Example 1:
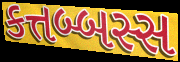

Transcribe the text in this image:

કત્તબ્બસ્સ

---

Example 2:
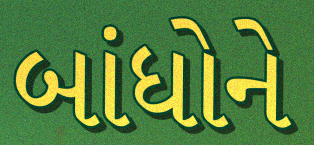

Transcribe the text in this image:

બાંધોને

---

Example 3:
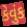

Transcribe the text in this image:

કેવુંક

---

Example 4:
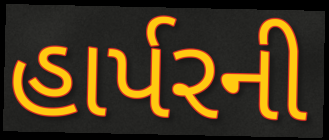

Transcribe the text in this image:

હાર્પરની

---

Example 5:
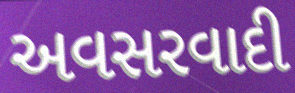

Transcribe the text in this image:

અવસરવાદી